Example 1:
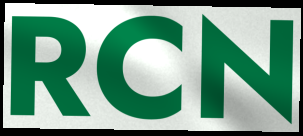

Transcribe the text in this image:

RCN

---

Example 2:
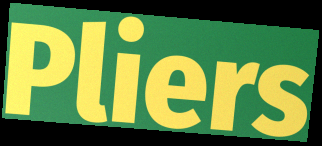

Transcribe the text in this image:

Pliers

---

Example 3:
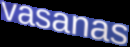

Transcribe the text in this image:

vasanas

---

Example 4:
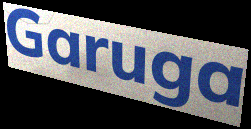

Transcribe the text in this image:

Garuga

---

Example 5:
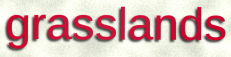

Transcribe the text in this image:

grasslands